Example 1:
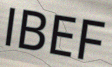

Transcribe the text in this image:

IBEF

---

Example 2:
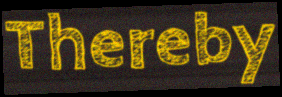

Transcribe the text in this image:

Thereby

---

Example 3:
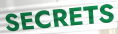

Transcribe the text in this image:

SECRETS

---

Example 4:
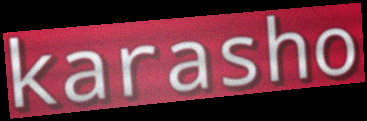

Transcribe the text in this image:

karasho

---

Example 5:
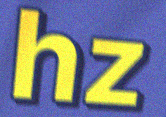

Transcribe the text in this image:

hz